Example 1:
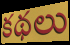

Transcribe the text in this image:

కథలు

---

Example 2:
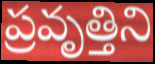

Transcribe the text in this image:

ప్రవృత్తిని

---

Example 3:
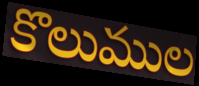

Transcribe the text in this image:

కొలుముల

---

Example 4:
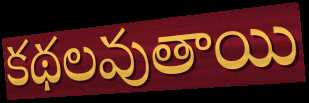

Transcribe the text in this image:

కథలవుతాయి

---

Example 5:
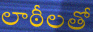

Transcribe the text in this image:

లాఠీలతో